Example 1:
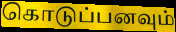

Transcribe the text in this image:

கொடுப்பனவும்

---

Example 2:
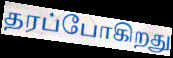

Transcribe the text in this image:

தரப்போகிறது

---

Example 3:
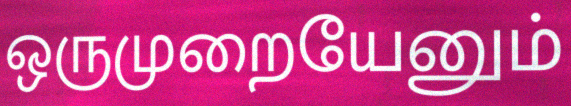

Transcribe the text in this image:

ஒருமுறையேனும்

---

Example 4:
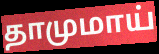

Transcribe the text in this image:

தாமுமாய்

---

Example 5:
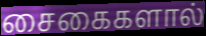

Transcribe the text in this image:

சைகைகளால்